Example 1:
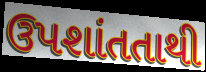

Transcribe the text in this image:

ઉપશાંતતાથી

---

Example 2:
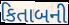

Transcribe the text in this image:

કિતાબની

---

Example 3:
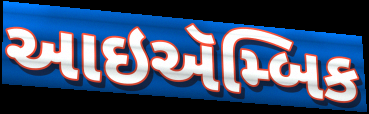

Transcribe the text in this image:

આઇઍમ્બિક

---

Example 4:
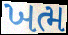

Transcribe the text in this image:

ખત્મ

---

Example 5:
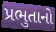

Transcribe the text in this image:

પ્રભુતાનો